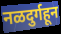
नळदुर्गहून